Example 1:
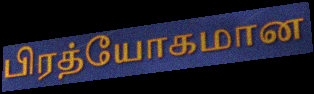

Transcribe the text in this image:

பிரத்யோகமான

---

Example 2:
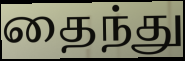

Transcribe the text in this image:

தைந்து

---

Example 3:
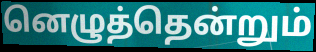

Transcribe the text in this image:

னெழுத்தென்றும்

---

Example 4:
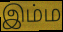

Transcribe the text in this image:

இம்ம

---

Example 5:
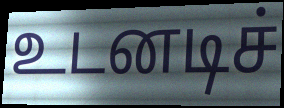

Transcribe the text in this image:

உடனடிச்